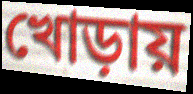
খোড়ায়